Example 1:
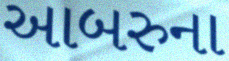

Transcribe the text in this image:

આબરુના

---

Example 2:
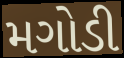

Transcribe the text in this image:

મગોડી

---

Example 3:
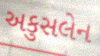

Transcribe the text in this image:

અકુસલેન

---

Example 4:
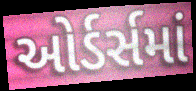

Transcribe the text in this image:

ઓર્ડર્સમાં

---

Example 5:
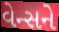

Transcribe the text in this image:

વેન્સને